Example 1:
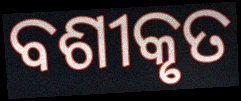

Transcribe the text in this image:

ବଶୀକୃତ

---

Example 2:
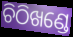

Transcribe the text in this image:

ଚିଠିଖଣ୍ଡେ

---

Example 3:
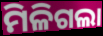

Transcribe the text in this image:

ମିଳିଗଲା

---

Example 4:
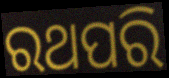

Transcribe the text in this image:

ରଥପରି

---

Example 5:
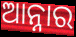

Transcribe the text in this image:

ଆନ୍ନାର